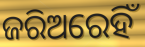
ଜରିଅରେହିଁ